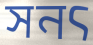
সনৎ